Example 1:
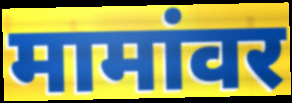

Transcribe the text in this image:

मामांवर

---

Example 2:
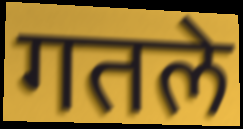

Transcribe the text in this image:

गतले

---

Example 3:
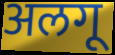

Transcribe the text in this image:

अलगू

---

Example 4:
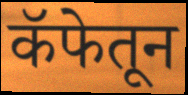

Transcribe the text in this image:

कॅफेतून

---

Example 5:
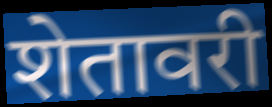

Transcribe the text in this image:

शेतावरी